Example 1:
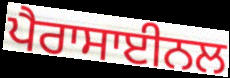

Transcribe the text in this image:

ਪੈਰਾਸਾਈਨਲ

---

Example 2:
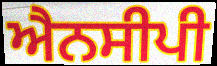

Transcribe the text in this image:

ਐਨਸੀਪੀ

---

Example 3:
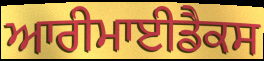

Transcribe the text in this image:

ਆਰੀਮਾਈਡੈਕਸ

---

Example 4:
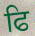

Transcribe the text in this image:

ਫਿ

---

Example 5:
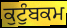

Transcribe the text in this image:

ਕੁਟੁੰਬਕਮ